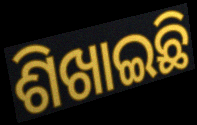
ଶିଖାଇଛି